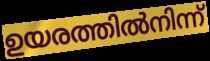
ഉയരത്തിൽനിന്ന്